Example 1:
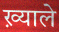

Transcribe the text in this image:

ख़्याले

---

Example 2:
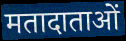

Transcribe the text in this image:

मतादाताओं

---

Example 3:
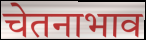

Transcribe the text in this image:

चेतनाभाव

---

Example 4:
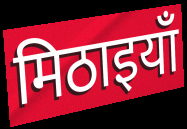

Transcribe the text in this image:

मिठाइयाँ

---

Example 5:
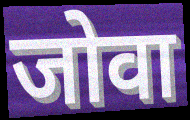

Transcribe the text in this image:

जोवा